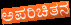
ಅಪರಿಚಿತನ